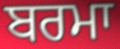
ਬਰਮਾ